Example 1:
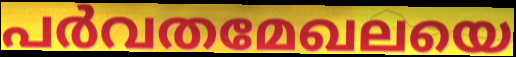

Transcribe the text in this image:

പർവതമേഖലയെ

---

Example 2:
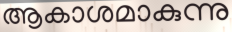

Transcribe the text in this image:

ആകാശമാകുന്നു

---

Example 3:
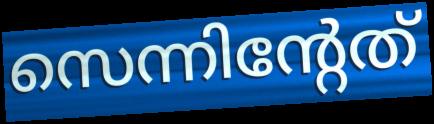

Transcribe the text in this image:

സെന്നിന്റേത്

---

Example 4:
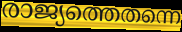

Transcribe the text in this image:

രാജ്യത്തെതന്നെ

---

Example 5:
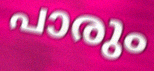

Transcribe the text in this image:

പാരും